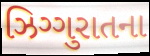
ઝિગ્ગુરાતના